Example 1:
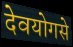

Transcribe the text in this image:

देवयोगसे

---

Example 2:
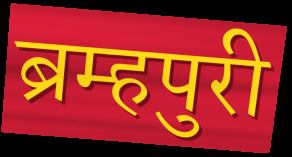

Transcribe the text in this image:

ब्रम्हपुरी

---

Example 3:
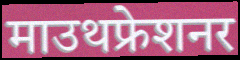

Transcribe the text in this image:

माउथफ्रेशनर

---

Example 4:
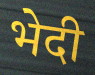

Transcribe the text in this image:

भेदी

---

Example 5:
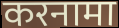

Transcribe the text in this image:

करनामा